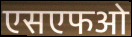
एसएफओ